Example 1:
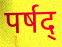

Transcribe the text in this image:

पर्षद्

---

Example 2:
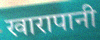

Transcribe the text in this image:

खारापानी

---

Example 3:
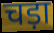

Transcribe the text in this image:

चड़ा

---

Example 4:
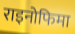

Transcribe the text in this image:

राइनोफिमा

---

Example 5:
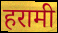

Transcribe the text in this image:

हरामी